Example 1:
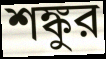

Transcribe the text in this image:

শঙ্কুর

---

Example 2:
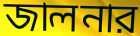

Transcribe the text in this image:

জালনার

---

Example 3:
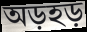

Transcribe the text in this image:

অড়হড়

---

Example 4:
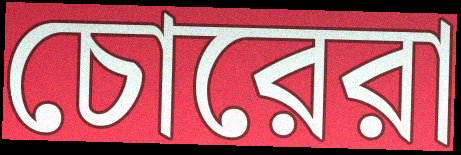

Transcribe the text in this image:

চোরেরা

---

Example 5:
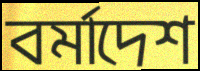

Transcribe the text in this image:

বর্মাদেশ